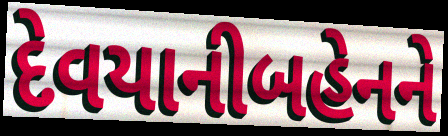
દેવયાનીબહેનને